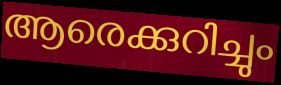
ആരെക്കുറിച്ചും